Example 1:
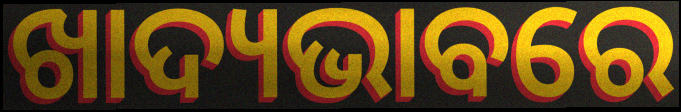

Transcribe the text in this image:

ଖାଦ୍ୟଭାବରେ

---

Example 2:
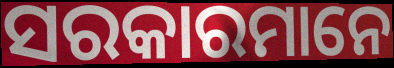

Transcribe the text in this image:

ସରକାରମାନେ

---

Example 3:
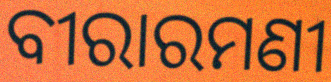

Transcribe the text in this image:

ବୀରାରମଣୀ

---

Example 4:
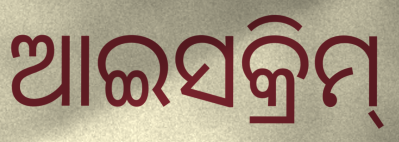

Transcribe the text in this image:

ଆଇସକ୍ରିମ୍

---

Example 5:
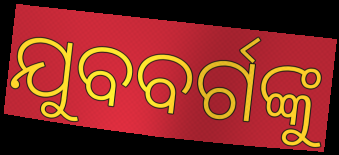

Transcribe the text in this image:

ଯୁବବର୍ଗଙ୍କୁ